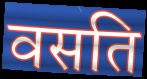
वसति